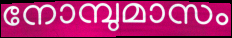
നോമ്പുമാസം